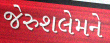
જેરુશલેમને